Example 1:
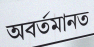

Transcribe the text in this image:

অবৰ্তমানত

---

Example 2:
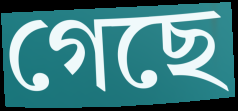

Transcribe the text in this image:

গেছে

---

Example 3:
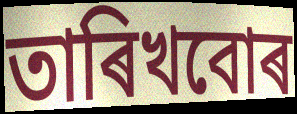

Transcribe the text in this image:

তাৰিখবোৰ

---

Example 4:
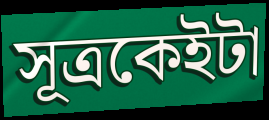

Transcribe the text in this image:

সূত্ৰকেইটা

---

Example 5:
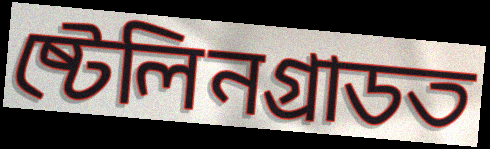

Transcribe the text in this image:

ষ্টেলিনগ্ৰাডত